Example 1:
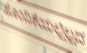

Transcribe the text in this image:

ಹೊಂದಿಕೆಯಲ್ಲಿಲ್ಲದ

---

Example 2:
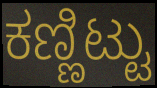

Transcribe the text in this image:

ಕಣ್ಣಿಟ್ಟು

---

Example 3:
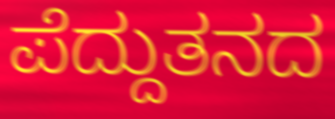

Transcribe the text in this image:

ಪೆದ್ದುತನದ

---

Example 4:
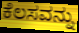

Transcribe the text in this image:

ಕೆಲಸವನ್ನು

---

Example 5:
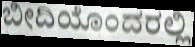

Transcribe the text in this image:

ಬೀದಿಯೊಂದರಲ್ಲಿ